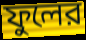
ফুলের